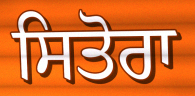
ਸਿਤੋਰਾ